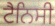
ਟੈਨਿਸੀ